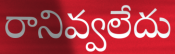
రానివ్వలేదు